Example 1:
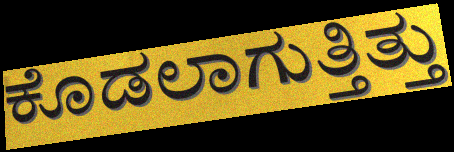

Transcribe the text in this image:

ಕೊಡಲಾಗುತ್ತಿತ್ತು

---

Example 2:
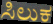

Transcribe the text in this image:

ಸಿಲುಕ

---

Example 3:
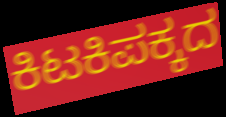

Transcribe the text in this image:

ಕಿಟಕಿಪಕ್ಕದ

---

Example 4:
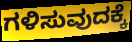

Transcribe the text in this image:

ಗಳಿಸುವುದಕ್ಕೆ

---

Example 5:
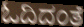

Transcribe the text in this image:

ಓದಿದಂತೆ